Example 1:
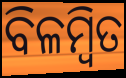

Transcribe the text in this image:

ବିଳମ୍ବିତ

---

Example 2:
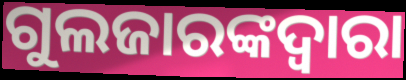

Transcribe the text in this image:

ଗୁଲଜାରଙ୍କଦ୍ୱାରା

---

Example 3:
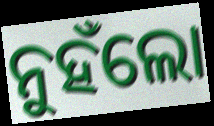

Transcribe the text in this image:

ନୁହଁଲୋ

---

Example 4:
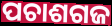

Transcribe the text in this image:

ପଚାଶଗଜ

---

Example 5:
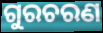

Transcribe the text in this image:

ଗୁରଚରଣ